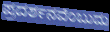
ಪ್ರದರ್ಶನವೆಂಬುದು